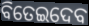
ବିତେଇଦେବ